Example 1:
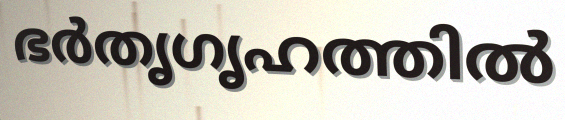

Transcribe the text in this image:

ഭർതൃഗൃഹത്തിൽ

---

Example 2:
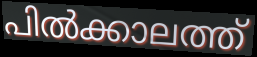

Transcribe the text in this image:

പിൽക്കാലത്ത്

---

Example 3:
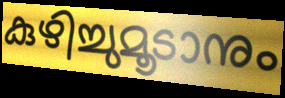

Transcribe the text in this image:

കുഴിച്ചുമൂടാനും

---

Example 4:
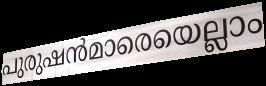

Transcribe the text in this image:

പുരുഷൻമാരെയെല്ലാം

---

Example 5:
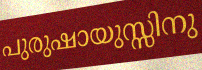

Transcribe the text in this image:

പുരുഷായുസ്സിനു